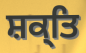
ਸ਼ਕ੍ਤਿ